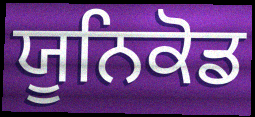
ਯੂਨਿਕੋਡ